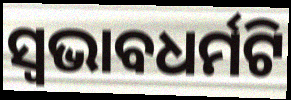
ସ୍ଵଭାବଧର୍ମଟି